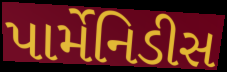
પાર્મેનિડીસ